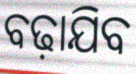
ବଢ଼ାଯିବ